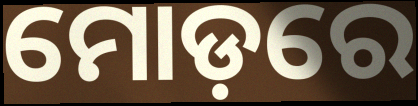
ମୋଡ଼ରେ